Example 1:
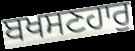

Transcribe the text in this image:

ਬਖਸਣਹਾਰੁ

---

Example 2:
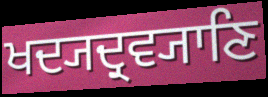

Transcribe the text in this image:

ਖਦ੍ਯਦ੍ਰਵ੍ਯਾਣਿ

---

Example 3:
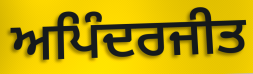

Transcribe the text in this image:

ਅਪਿੰਦਰਜੀਤ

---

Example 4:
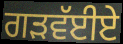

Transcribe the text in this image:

ਗੜਵੱਈਏ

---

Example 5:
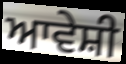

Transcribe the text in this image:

ਆਵੇਸ਼ੀ